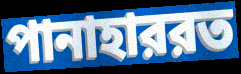
পানাহাররত